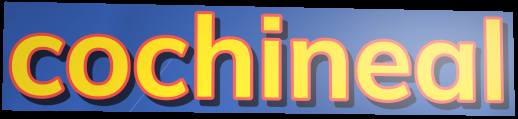
cochineal